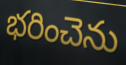
భరించెను